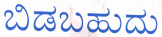
ಬಿಡಬಹುದು